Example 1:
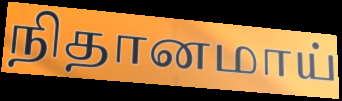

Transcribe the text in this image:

நிதானமாய்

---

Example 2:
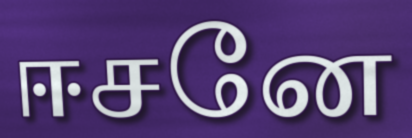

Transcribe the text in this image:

ஈசனே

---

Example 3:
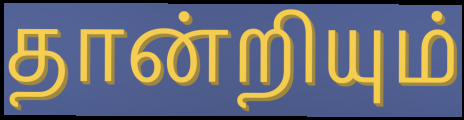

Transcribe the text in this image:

தான்றியும்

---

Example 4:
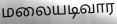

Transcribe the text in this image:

மலையடிவார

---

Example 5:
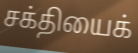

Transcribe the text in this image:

சக்தியைக்